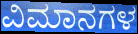
ವಿಮಾನಗಳ